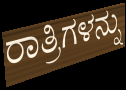
ರಾತ್ರಿಗಳನ್ನು